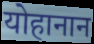
योहानान